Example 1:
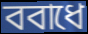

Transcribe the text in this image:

ববাধে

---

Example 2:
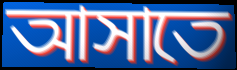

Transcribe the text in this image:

আসাতে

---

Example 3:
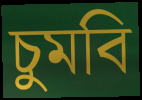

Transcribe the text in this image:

চুমবি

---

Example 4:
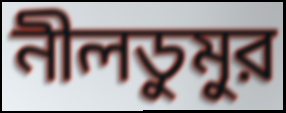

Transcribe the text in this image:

নীলডুমুর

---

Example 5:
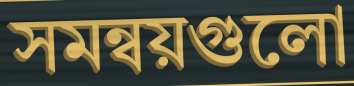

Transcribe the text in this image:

সমন্বয়গুলো